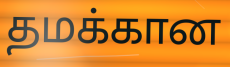
தமக்கான